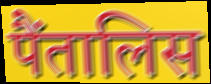
पैंतालिस